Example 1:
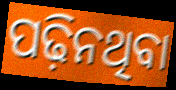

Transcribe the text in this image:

ପଢ଼ିନଥିବା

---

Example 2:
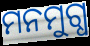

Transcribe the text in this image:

ମନମୁଗ୍ଧ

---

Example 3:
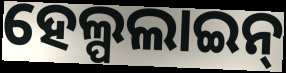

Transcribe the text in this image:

ହେଲ୍ପଲାଇନ୍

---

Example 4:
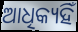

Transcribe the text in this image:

ଆଧିକ୍ୟହିଁ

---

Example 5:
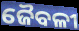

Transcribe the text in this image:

ଜୈବଳୀ